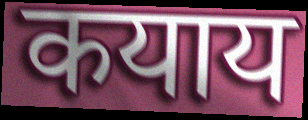
कयाय